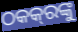
ଠକକ୍‌ରଙ୍କୁ